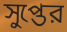
সুপ্তের